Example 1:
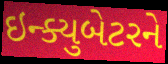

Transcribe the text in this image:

ઇન્ક્યુબેટરને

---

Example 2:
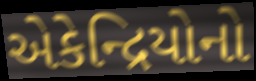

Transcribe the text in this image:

એકેન્દ્રિયોનો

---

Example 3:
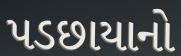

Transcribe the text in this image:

પડછાયાનો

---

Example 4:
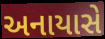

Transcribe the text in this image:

અનાયાસે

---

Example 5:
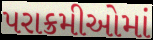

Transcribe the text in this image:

પરાક્રમીઓમાં